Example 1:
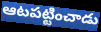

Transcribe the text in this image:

ఆటపట్టించాడు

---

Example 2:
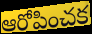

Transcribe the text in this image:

ఆరోపించక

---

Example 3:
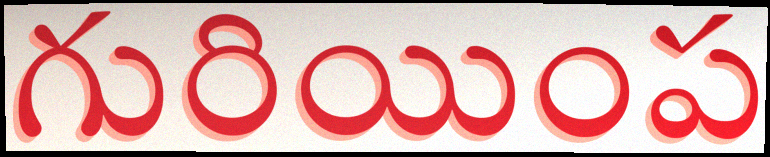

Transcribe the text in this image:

గురియింప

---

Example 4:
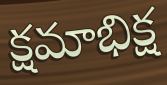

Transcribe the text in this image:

క్షమాభిక్ష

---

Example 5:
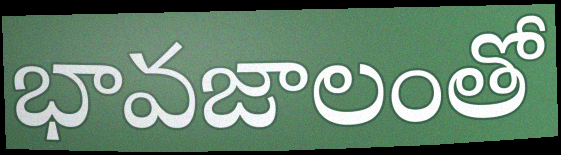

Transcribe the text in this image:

భావజాలంతో